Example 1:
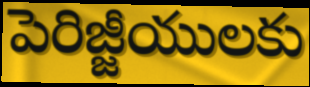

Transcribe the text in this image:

పెరిజ్జీయులకు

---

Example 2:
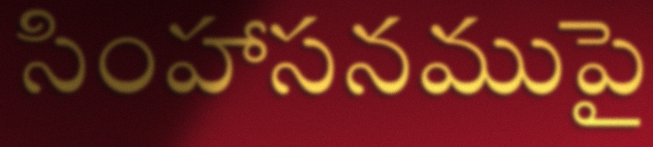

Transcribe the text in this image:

సింహాసనముపై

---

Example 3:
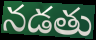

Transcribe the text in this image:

నడతు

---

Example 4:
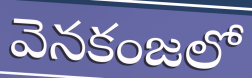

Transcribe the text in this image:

వెనకంజలో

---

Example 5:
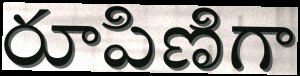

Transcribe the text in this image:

రూపిణిగా